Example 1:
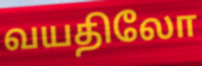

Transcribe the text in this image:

வயதிலோ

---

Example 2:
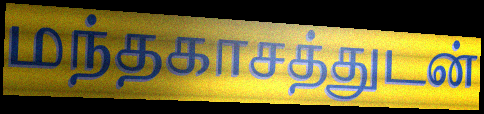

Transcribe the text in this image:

மந்தகாசத்துடன்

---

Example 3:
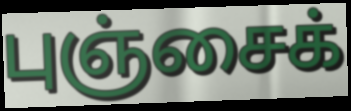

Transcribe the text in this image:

புஞ்சைக்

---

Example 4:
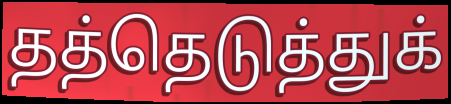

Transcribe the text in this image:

தத்தெடுத்துக்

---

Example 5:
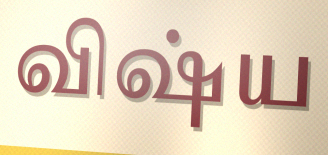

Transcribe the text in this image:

விஷ்ய